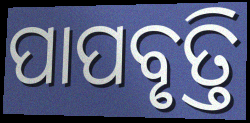
ପାପବୃତ୍ତି